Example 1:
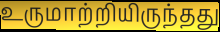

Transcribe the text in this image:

உருமாற்றியிருந்தது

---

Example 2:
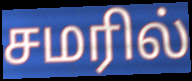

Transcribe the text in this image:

சமரில்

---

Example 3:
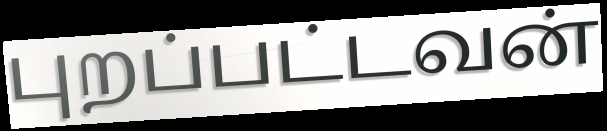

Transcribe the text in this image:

புறப்பட்டவன்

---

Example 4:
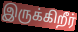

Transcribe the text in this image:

இருக்கிறீர்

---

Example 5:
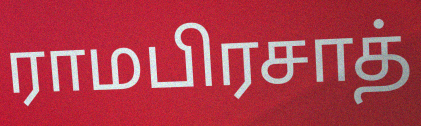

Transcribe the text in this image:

ராமபிரசாத்